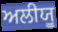
ਅਲੀਯੂ